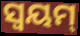
ସ୍ୱୟମ୍